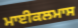
ਮਾਈਕਲਮਾਸ